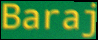
Baraj